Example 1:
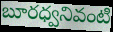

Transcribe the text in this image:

బూరధ్వనివంటి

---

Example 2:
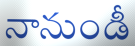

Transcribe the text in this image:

నానుండీ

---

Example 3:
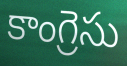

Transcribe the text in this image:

కాంగ్రెసు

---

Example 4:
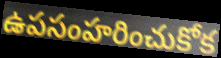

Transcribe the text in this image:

ఉపసంహరించుకోక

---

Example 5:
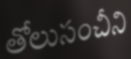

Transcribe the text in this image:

తోలుసంచీని